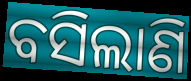
ବସିଲାଣି